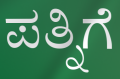
ಪತ್ನಿಗೆ